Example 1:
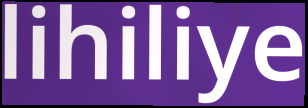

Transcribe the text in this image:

lihiliye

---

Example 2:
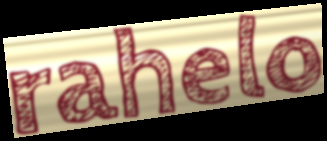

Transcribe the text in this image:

rahelo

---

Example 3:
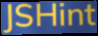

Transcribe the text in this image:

JSHint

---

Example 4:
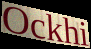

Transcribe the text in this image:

Ockhi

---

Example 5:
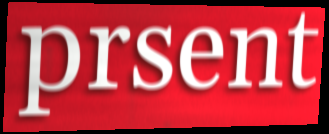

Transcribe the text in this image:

prsent